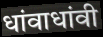
धांवाधांवी